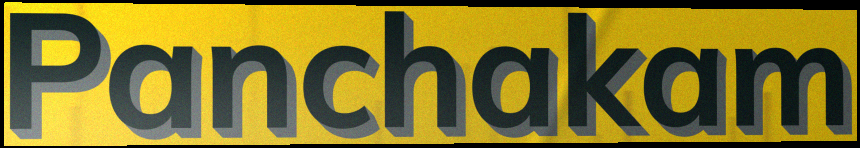
Panchakam